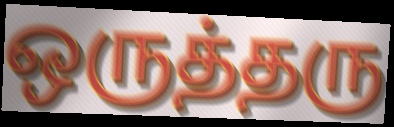
ஒருத்தரு